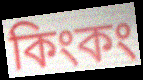
কিংকং